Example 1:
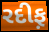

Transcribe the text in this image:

રદીફ઼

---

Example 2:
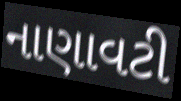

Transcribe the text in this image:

નાણાવટી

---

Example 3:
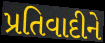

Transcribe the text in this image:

પ્રતિવાદીને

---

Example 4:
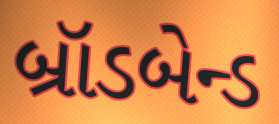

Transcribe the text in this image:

બ્રૉડબેન્ડ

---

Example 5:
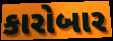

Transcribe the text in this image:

કારોબાર